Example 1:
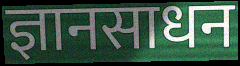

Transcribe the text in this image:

ज्ञानसाधन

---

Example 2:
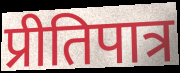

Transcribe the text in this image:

प्रीतिपात्र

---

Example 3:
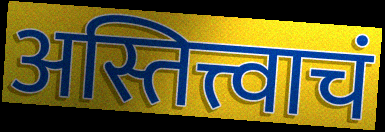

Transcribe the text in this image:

अस्तित्त्वाचं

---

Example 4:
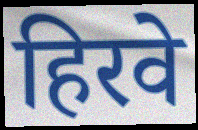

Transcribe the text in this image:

हिरवे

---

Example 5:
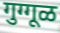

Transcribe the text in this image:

गुग्गूळ